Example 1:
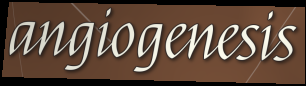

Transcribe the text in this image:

angiogenesis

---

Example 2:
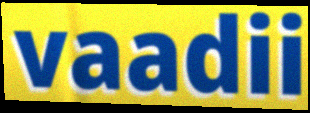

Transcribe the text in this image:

vaadii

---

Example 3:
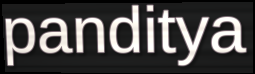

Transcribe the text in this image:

panditya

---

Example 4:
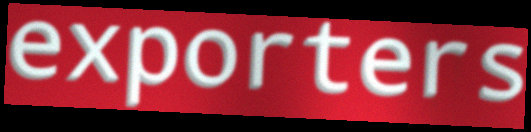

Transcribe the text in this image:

exporters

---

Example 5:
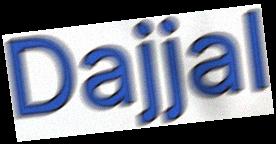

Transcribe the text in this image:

Dajjal